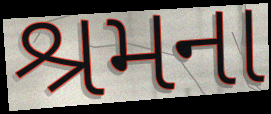
શ્રમના